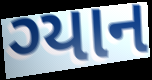
ગ્યાન